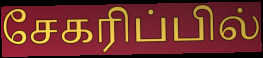
சேகரிப்பில்